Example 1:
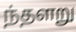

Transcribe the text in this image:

ந்தளறு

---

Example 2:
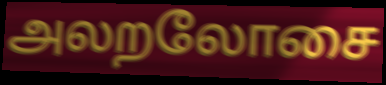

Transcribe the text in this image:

அலறலோசை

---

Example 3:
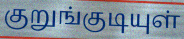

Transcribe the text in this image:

குறுங்குடியுள்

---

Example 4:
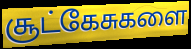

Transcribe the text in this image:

சூட்கேசுகளை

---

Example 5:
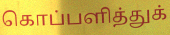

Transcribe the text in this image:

கொப்பளித்துக்